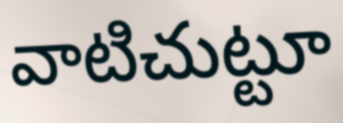
వాటిచుట్టూ